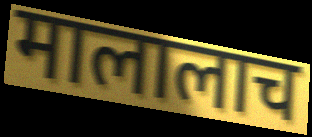
मालालाच